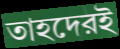
তাহদেরই